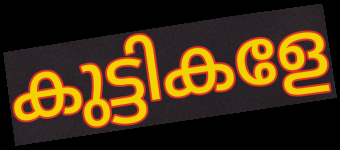
കുട്ടികളേ